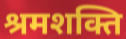
श्रमशक्ति